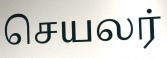
செயலர்